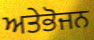
ਅਤੇਭੋਜਨ